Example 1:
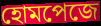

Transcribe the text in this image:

হোমপেজে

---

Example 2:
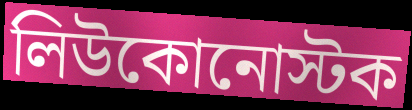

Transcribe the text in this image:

লিউকোনোস্টক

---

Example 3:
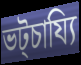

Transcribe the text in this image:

ভট্চায্যি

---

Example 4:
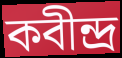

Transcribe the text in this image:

কবীন্দ্র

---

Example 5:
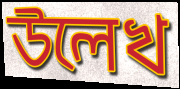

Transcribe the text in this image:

উলেখ